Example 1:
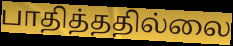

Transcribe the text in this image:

பாதித்ததில்லை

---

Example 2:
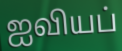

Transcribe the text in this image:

ஐவியப்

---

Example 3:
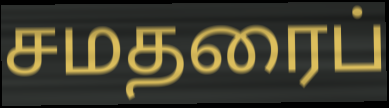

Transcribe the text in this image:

சமதரைப்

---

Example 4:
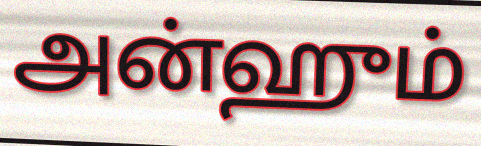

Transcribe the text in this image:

அன்ஹும்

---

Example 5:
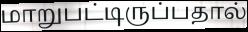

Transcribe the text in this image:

மாறுபட்டிருப்பதால்